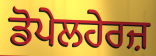
ਡੋਪੇਲਹੇਰਜ਼